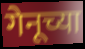
गेनूच्या